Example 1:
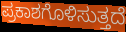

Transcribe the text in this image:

ಪ್ರಕಾಶಗೊಳಿಸುತ್ತದೆ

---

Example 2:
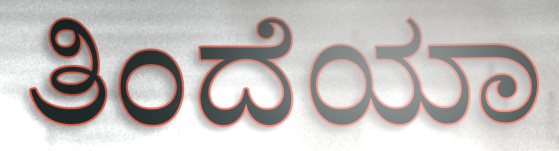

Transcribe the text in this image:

ತಿಂದೆಯಾ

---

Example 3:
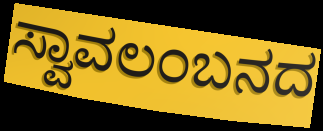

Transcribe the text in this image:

ಸ್ವಾವಲಂಬನದ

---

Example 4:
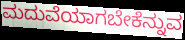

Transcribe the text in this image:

ಮದುವೆಯಾಗಬೇಕೆನ್ನುವ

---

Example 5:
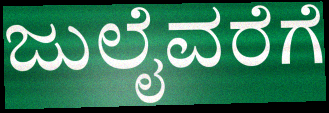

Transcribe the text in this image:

ಜುಲೈವರೆಗೆ